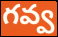
గవ్వ